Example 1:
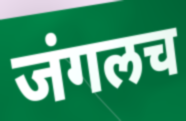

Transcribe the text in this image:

जंगलच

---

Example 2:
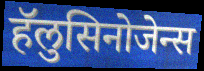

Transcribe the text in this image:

हॅलुसिनोजेन्स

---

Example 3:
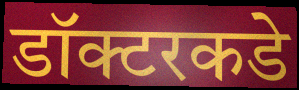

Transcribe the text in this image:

डॉक्टरकडे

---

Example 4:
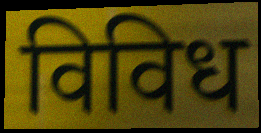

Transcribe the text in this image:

विविध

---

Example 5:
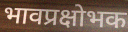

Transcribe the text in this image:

भावप्रक्षोभक